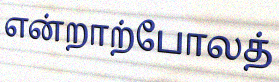
என்றாற்போலத்